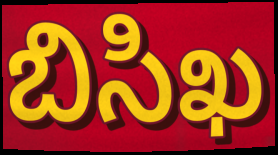
బిసిఖ